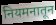
नियमनातून